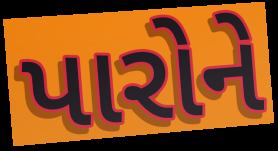
પારોને